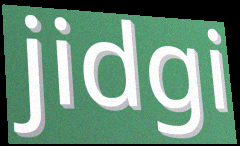
jidgi